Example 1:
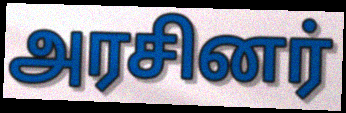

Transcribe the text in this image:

அரசினர்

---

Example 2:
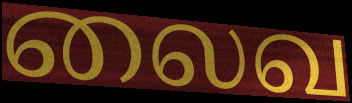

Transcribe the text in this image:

லைவ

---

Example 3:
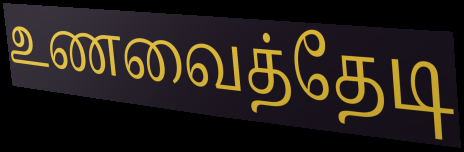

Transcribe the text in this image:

உணவைத்தேடி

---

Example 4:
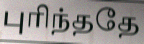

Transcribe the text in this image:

புரிந்ததே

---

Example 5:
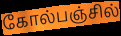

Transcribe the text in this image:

கோல்பஞ்சில்